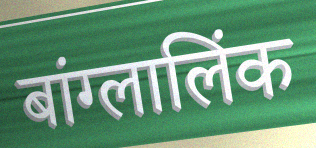
बांग्लालिंक